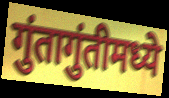
गुंतागुंतीमध्ये